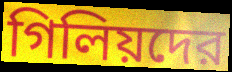
গিলিয়দের